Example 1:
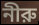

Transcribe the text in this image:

নীরু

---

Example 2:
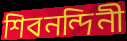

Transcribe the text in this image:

শিবনন্দিনী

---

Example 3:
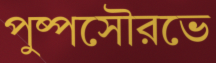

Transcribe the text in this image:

পুষ্পসৌরভে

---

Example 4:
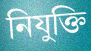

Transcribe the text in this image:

নিযুক্তি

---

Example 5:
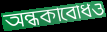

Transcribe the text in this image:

অন্ধকাবোধও